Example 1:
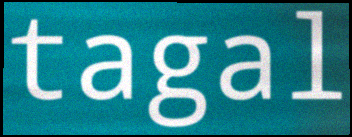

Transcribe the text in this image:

tagal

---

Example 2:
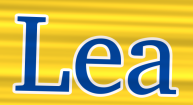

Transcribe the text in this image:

Lea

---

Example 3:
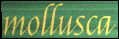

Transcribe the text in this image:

mollusca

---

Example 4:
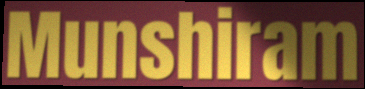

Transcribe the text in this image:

Munshiram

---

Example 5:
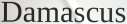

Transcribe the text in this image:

Damascus